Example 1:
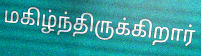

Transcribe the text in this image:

மகிழ்ந்திருக்கிறார்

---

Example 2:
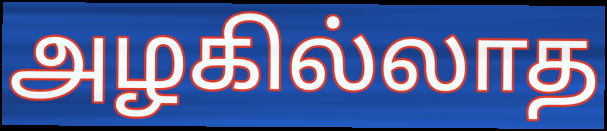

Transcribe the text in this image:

அழகில்லாத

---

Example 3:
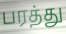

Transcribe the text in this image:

பரத்து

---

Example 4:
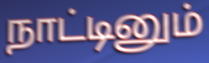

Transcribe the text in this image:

நாட்டினும்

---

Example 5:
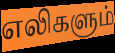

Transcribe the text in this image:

எலிகளும்